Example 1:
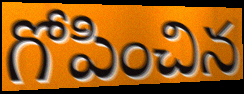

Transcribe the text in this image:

గోపించిన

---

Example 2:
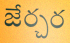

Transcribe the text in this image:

జేర్చర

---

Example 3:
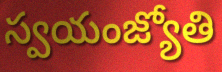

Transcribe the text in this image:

స్వయంజ్యోతి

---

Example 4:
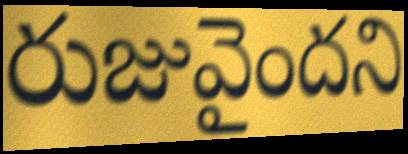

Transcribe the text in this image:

రుజువైందని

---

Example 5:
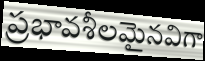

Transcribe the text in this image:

ప్రభావశీలమైనవిగా